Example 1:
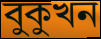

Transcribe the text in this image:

বুকুখন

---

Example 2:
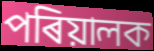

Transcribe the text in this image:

পৰিয়ালক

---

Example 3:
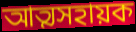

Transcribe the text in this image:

আত্মসহায়ক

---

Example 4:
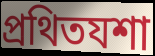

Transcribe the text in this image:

প্ৰথিতযশা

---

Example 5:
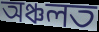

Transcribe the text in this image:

অঞ্চলত